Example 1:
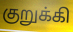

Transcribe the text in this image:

குறுக்கி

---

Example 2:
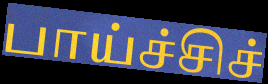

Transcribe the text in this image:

பாய்ச்சிச்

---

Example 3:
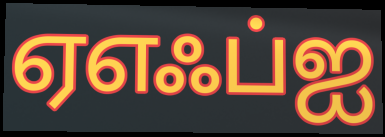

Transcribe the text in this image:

ஏஎஃப்ஐ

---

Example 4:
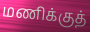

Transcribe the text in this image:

மணிக்குத்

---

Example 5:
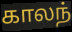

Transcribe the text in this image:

காலந்